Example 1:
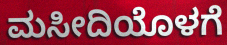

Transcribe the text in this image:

ಮಸೀದಿಯೊಳಗೆ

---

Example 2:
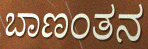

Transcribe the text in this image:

ಬಾಣಂತನ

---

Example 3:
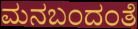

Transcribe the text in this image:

ಮನಬಂದಂತೆ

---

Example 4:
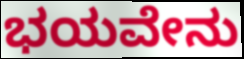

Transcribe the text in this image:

ಭಯವೇನು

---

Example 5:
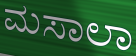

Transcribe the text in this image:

ಮಸಾಲಾ